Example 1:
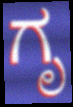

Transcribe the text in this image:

ಗೃ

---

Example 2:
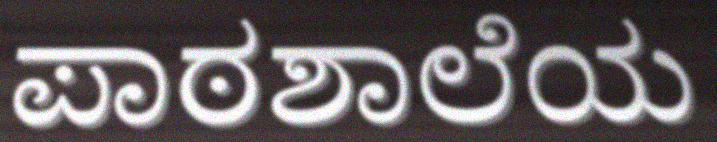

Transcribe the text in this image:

ಪಾಠಶಾಲೆಯ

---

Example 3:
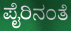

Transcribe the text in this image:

ಪೈರಿನಂತೆ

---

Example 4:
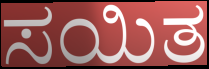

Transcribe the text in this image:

ಸಯಿತ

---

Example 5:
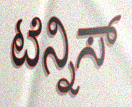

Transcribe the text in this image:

ಟೆನ್ನಿಸ್